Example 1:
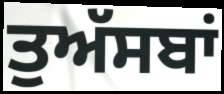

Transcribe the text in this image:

ਤੁਅੱਸਬਾਂ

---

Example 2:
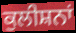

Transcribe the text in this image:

ਕੁਲੀਸ਼ਨਾਂ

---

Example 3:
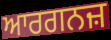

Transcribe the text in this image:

ਆਰਗਨਜ਼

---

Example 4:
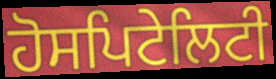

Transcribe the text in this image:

ਹੋਸਪਿਟੇਲਿਟੀ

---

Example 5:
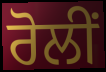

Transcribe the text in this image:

ਰੋਲੀਂ